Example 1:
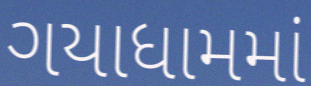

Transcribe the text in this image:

ગયાધામમાં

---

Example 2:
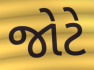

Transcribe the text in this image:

જોટે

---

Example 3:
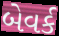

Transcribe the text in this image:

બેવર્ક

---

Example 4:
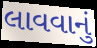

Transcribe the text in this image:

લાવવાનું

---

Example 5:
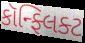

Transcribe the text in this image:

કૉન્ફ્લિક્ટ